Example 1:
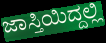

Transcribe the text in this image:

ಜಾಸ್ತಿಯಿದ್ದಲ್ಲಿ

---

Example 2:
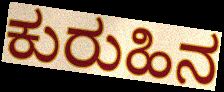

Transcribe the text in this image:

ಕುರುಹಿನ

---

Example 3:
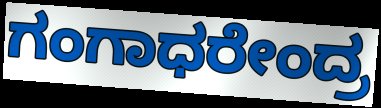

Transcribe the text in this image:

ಗಂಗಾಧರೇಂದ್ರ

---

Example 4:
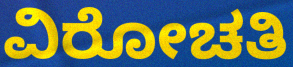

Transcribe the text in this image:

ವಿರೋಚತಿ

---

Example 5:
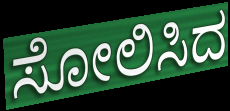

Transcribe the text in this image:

ಸೋಲಿಸಿದ